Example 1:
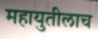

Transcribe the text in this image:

महायुतीलाच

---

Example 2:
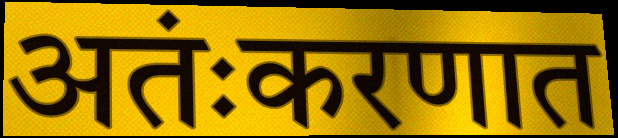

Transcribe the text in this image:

अतंःकरणात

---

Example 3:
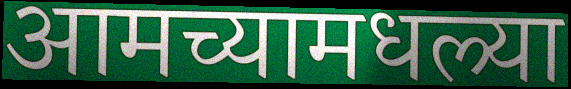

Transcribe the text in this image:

आमच्यामधल्या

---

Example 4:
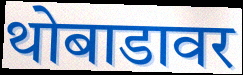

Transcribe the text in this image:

थोबाडावर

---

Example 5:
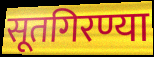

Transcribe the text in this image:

सूतगिरण्या